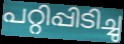
പറ്റിപ്പിടിച്ചു